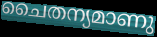
ചൈതന്യമാണു